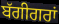
ਬੱਗੀਗਰਾਂ